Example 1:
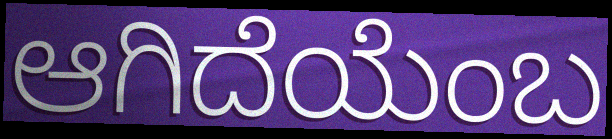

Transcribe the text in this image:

ಆಗಿದೆಯೆಂಬ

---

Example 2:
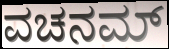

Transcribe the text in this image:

ವಚನಮ್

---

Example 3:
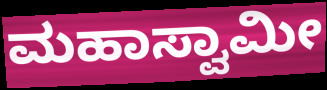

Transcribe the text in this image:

ಮಹಾಸ್ವಾಮೀ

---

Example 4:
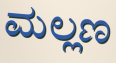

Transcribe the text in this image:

ಮಲ್ಲಣ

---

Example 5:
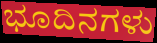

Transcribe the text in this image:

ಭೂದಿನಗಳು